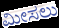
ಮೀಸಲು